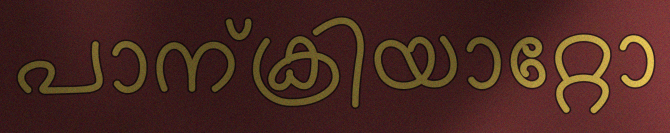
പാന്ക്രിയാറ്റോ